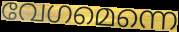
വേഗമെന്നെ